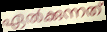
ഏൽക്കുന്നത്